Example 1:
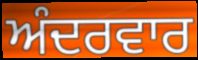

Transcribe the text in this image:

ਅੰਦਰਵਾਰ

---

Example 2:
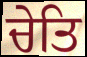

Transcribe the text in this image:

ਚੇਤਿ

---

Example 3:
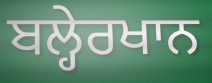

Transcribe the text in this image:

ਬਲ੍ਹੇਰਖਾਨ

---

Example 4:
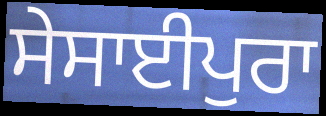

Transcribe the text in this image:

ਸੇਸਾਈਪੁਰਾ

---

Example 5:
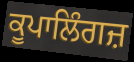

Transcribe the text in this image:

ਕੂਪਾਲਿੰਗਜ਼